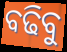
ବଢିବୁ